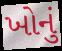
ખોનું